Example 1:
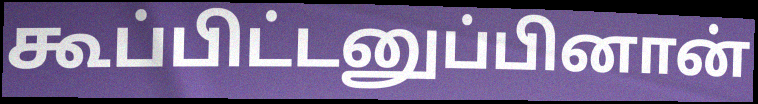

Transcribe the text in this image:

கூப்பிட்டனுப்பினான்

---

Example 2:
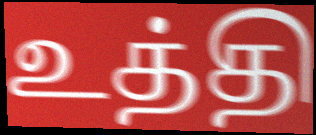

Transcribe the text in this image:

உத்தி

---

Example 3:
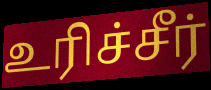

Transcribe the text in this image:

உரிச்சீர்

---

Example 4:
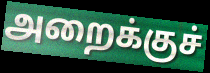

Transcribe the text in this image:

அறைக்குச்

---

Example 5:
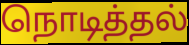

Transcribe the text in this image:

நொடித்தல்